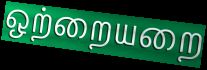
ஒற்றையறை